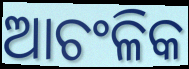
ଆଚଂଳିକ